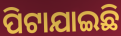
ପିଟାଯାଇଛି